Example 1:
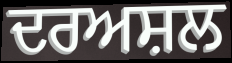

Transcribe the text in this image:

ਦਰਅਸ਼ਲ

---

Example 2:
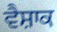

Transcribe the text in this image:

ਵੈਸ਼ਾਕ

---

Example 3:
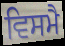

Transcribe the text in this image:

ਵਿਸਮੈ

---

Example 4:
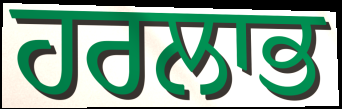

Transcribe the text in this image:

ਹਰਲਾਭ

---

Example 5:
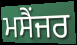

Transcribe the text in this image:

ਮਸੈਂਜਰ